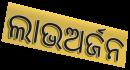
ଲାଭଅର୍ଜନ